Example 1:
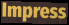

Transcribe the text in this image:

Impress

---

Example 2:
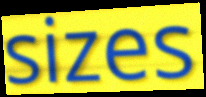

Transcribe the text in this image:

sizes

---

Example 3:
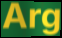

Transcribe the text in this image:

Arg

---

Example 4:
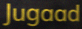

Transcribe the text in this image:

Jugaad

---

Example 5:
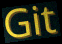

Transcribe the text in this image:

Git